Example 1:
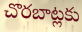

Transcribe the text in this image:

చొరబాట్లకు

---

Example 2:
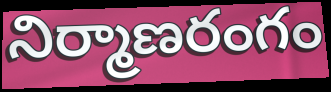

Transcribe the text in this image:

నిర్మాణరంగం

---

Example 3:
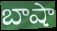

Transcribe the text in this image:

బాషా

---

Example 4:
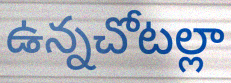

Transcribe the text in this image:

ఉన్నచోటల్లా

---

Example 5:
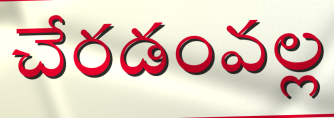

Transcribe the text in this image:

చేరడంవల్ల